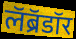
लॅब्रॅडॉर